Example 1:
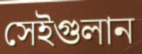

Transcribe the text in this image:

সেইগুলান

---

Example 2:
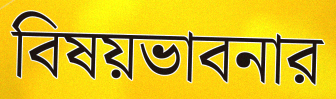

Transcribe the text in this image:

বিষয়ভাবনার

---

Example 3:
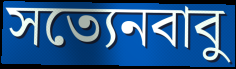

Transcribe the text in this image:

সত্যেনবাবু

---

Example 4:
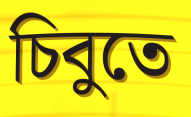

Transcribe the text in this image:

চিবুতে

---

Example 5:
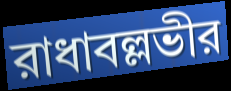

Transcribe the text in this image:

রাধাবল্লভীর